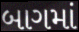
બાગમાં